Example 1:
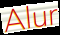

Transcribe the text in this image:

Alur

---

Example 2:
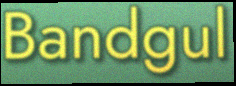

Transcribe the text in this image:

Bandgul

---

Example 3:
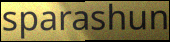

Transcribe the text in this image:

sparashun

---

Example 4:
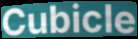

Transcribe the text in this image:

Cubicle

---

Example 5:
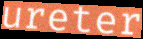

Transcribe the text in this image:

ureter